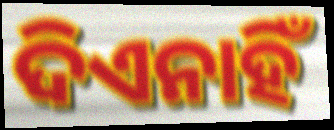
ଦିଏନାହିଁ